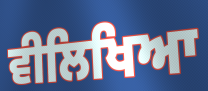
ਵੀਲਿਖਿਆ